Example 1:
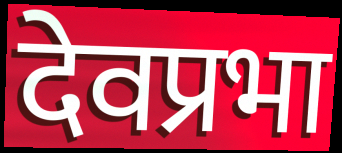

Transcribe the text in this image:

देवप्रभा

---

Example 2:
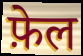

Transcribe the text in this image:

फ़ेल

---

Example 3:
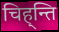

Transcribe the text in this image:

चिह्न्ति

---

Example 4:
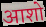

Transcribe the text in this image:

आशो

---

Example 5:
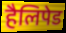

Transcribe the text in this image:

हैलिपेड